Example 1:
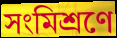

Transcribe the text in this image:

সংমিশ্ৰণে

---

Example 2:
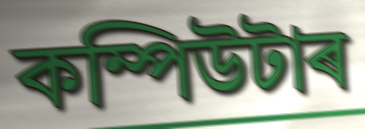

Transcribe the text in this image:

কম্পিউটাৰ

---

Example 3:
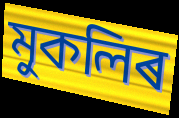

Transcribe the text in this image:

মুকলিৰ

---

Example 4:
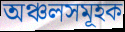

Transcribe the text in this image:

অঞ্চলসমূহক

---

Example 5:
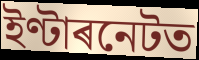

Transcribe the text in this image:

ইণ্টাৰনেটত